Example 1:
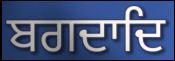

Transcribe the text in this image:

ਬਗਦਾਦਿ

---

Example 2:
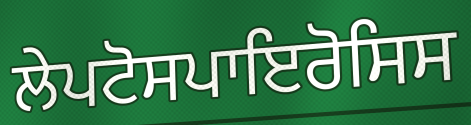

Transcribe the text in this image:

ਲੇਪਟੋਸਪਾਇਰੋਸਿਸ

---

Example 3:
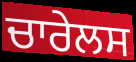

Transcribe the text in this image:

ਚਾਰੇਲਸ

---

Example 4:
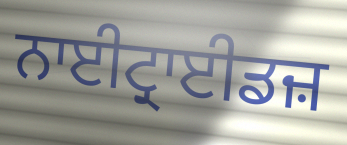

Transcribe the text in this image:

ਨਾਈਟ੍ਰਾਈਡਜ਼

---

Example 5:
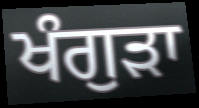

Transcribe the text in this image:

ਖੰਗੁੜਾ